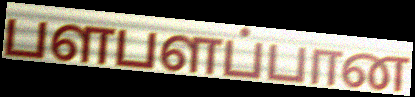
பளபளப்பான